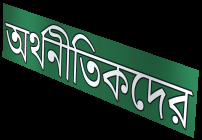
অর্থনীতিকদের